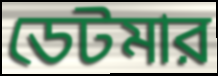
ডেটমার